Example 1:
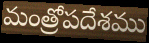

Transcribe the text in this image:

మంత్రోపదేశము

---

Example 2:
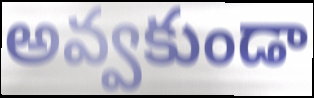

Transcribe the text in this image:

అవ్వకుండా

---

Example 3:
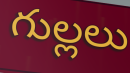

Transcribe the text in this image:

గుల్లలు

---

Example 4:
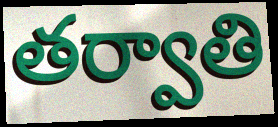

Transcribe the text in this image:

తర్వాతి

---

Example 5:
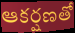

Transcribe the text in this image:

ఆకర్షణతో